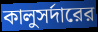
কালুসর্দারের